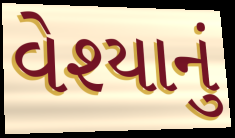
વેશ્યાનું